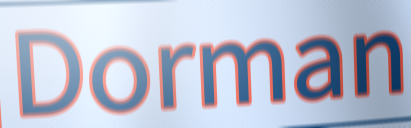
Dorman